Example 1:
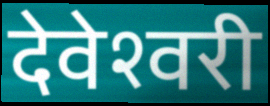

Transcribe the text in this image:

देवेश्वरी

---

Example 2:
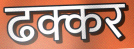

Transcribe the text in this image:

ढक्कर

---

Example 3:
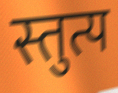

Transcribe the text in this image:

स्तुत्य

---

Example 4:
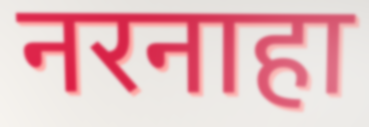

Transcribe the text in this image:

नरनाहा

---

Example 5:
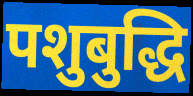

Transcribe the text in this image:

पशुबुद्धि